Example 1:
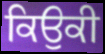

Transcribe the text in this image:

ਕਿਉਕੀ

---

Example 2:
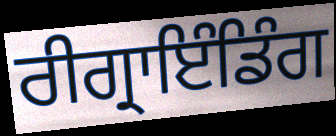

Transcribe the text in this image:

ਰੀਗ੍ਰਾਇੰਡਿੰਗ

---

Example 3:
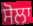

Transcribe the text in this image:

ਸੋਲਾ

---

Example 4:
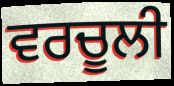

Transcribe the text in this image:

ਵਰਚੂਲੀ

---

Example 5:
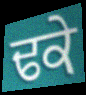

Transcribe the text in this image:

ਢਕੇ